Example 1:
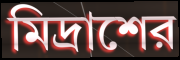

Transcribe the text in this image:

মিদ্রাশের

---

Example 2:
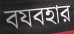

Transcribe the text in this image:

বযবহার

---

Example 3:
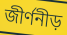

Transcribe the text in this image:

জীর্ণনীড়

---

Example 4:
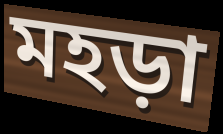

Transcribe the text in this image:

মহড়া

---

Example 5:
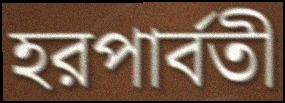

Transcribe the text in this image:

হরপার্বতী